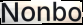
Nonbo